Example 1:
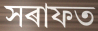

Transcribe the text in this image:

সৰাফত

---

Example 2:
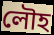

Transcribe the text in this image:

লৌহ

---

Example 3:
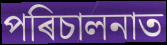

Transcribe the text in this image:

পৰিচালনাত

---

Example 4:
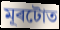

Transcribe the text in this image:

মূৰটোত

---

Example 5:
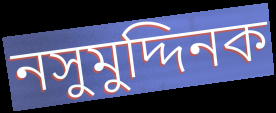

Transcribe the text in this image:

নসুমুদ্দিনক